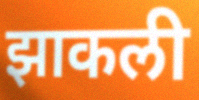
झाकली